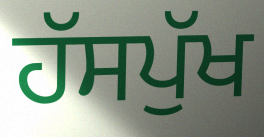
ਹੱਸਪੁੱਖ